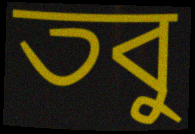
তবু